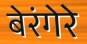
बेरंगेरे